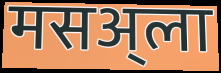
मसअ्ला